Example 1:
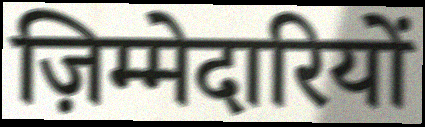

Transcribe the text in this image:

ज़िम्मेदारियों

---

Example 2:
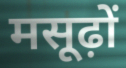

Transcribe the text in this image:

मसूढ़ों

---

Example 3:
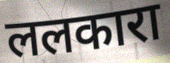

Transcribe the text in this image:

ललकारा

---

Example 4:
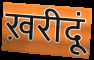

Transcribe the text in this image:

ख़रीदूं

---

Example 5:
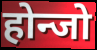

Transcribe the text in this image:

होन्जो